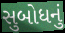
સુબોધનું